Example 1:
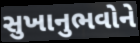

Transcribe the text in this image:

સુખાનુભવોને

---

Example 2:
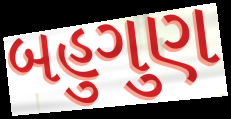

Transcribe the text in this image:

બહુગુણ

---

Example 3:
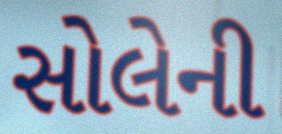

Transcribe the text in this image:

સોલેની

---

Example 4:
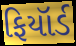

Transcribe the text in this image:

ફિયૉર્ડ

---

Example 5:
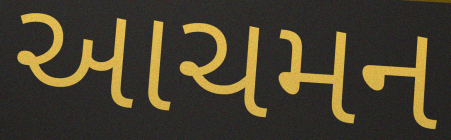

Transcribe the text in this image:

આચમન